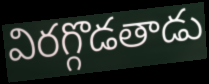
విరగ్గొడతాడు